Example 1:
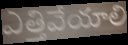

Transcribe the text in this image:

ఎత్తివేయాలి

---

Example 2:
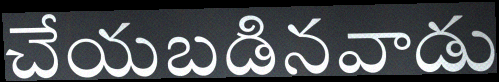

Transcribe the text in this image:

చేయబడినవాడు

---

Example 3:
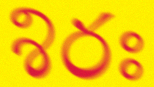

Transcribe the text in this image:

శిరః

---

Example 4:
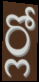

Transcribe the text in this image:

ర్లో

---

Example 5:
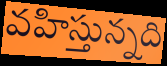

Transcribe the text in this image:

వహిస్తున్నది